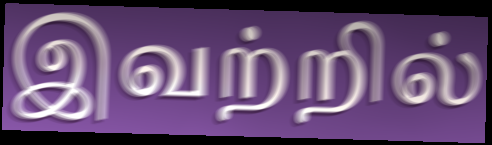
இவற்றில்